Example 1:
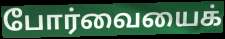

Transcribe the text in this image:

போர்வையைக்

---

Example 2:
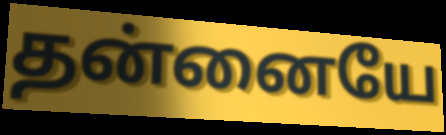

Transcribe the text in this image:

தன்னையே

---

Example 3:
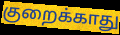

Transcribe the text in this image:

குறைக்காது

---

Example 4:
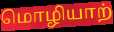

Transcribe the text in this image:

மொழியாற்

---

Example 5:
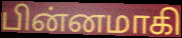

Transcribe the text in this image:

பின்னமாகி